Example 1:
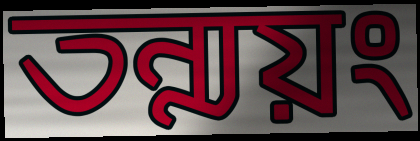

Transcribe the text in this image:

তন্ময়ং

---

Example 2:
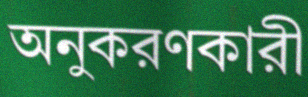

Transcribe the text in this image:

অনুকরণকারী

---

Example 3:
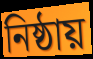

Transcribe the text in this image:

নিষ্ঠায়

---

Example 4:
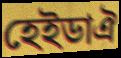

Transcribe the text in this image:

হেইডাঐ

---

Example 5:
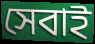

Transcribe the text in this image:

সেবাই